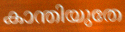
കാന്തിയുതേ